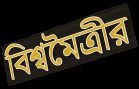
বিশ্বমৈত্রীর